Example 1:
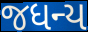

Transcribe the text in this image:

જધન્ય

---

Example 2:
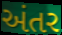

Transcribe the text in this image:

અંતર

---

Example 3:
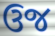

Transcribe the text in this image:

ઉજ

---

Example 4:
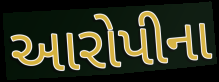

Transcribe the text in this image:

આરોપીના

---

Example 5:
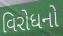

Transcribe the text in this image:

વિરોધનો